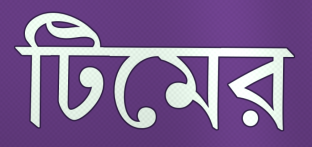
টিমের